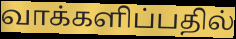
வாக்களிப்பதில்